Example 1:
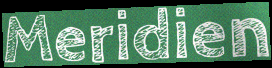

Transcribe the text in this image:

Meridien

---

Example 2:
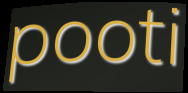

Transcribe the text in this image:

pooti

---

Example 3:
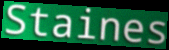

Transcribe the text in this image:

Staines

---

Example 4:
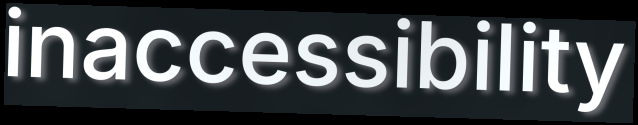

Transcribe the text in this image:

inaccessibility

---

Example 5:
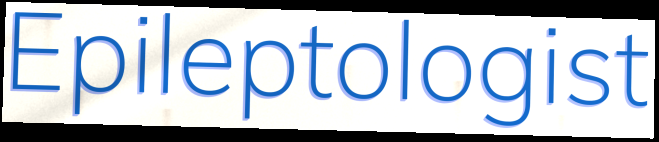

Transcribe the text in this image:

Epileptologist